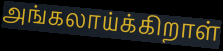
அங்கலாய்க்கிறாள்